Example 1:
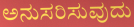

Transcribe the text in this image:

ಅನುಸರಿಸುವುದು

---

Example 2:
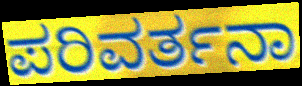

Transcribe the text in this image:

ಪರಿವರ್ತನಾ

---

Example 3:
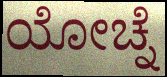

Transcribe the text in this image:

ಯೋಚ್ನೆ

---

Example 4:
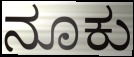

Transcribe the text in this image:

ನೂಕು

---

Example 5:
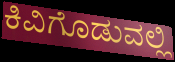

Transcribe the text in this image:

ಕಿವಿಗೊಡುವಲ್ಲಿ